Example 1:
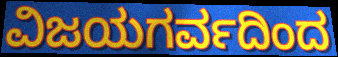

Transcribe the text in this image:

ವಿಜಯಗರ್ವದಿಂದ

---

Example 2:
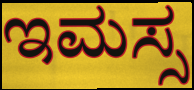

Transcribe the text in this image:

ಇಮಸ್ಸ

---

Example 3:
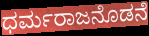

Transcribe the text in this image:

ಧರ್ಮರಾಜನೊಡನೆ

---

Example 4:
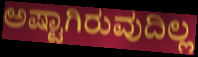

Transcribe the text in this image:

ಅಷ್ಟಾಗಿರುವುದಿಲ್ಲ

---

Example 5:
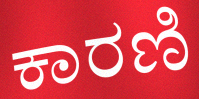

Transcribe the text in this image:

ಕಾರಣಿ